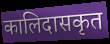
कालिदासकृत